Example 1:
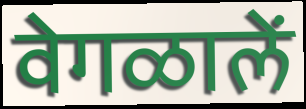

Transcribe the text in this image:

वेगळालें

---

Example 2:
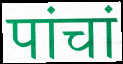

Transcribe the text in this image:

पांचां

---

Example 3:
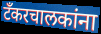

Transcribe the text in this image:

टँकरचालकांना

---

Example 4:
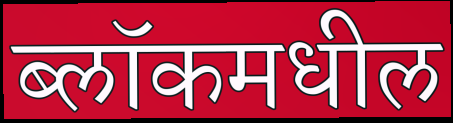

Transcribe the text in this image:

ब्लॉकमधील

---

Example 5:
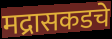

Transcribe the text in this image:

मद्रासकडचे